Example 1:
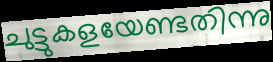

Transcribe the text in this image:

ചുട്ടുകളയേണ്ടതിന്നു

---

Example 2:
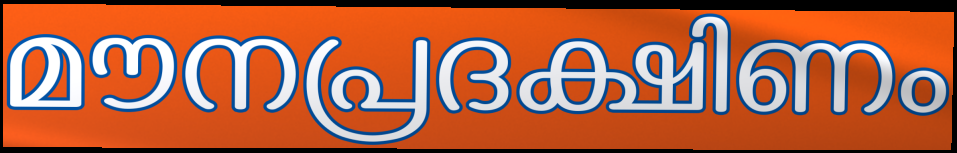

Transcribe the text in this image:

മൗനപ്രദക്ഷിണം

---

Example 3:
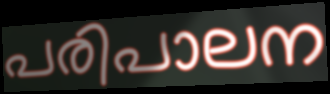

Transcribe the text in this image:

പരിപാലന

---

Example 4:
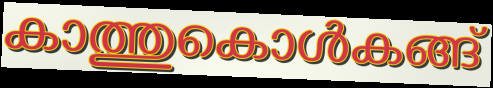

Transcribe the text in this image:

കാത്തുകൊൾകങ്ങ്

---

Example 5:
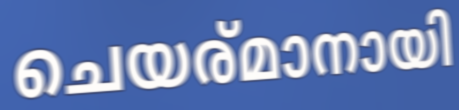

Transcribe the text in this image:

ചെയര്മാനായി